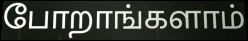
போறாங்களாம்